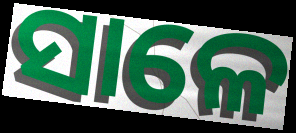
ସାଳେ